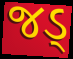
જડ્